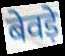
बेवड़े